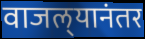
वाजल्यानंतर